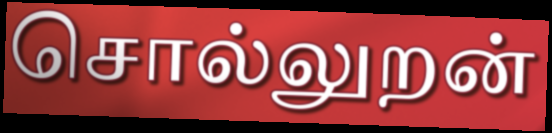
சொல்லுறன்